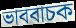
ভাববাচক